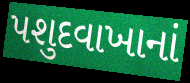
પશુદવાખાનાં